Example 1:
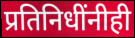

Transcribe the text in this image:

प्रतिनिधींनीही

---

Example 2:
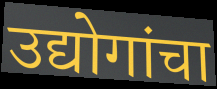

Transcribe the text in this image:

उद्योगांचा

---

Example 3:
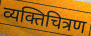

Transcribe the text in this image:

व्यक्तिचित्रण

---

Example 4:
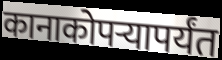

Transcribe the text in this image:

कानाकोपऱ्यापर्यंत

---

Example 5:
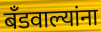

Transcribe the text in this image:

बँडवाल्यांना